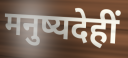
मनुष्यदेहीं